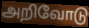
அறிவோடு